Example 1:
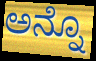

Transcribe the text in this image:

ಅನ್ನೊ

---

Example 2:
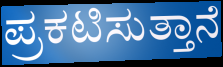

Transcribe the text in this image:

ಪ್ರಕಟಿಸುತ್ತಾನೆ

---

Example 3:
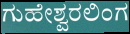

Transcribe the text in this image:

ಗುಹೇಶ್ವರಲಿಂಗ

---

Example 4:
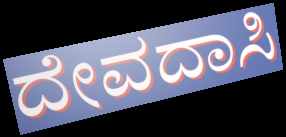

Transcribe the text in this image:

ದೇವದಾಸಿ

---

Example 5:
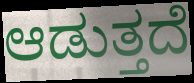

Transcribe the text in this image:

ಆಡುತ್ತದೆ